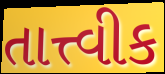
તાત્ત્વીક